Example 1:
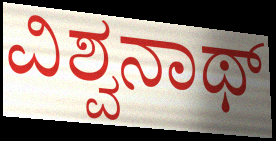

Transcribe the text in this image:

ವಿಶ್ವನಾಥ್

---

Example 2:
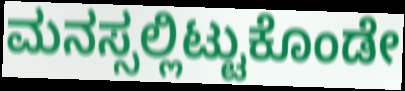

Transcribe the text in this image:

ಮನಸ್ಸಲ್ಲಿಟ್ಟುಕೊಂಡೇ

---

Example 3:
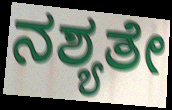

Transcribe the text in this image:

ನಶ್ಯತೇ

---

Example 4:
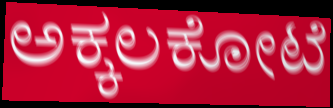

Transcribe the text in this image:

ಅಕ್ಕಲಕೋಟೆ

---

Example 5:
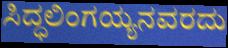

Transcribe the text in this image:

ಸಿದ್ಧಲಿಂಗಯ್ಯನವರದು